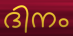
ദിനം